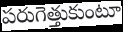
పరుగెత్తుకుంటూ